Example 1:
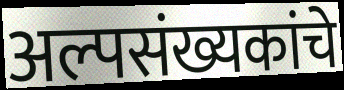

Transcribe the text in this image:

अल्पसंख्यकांचे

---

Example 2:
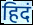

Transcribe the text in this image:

हिदं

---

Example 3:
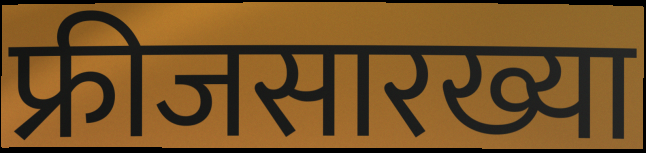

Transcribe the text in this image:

फ्रीजसारख्या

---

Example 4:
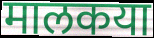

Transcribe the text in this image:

मालकया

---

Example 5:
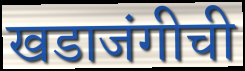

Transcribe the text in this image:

खडाजंगीची